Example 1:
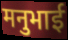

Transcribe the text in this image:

मनुभाई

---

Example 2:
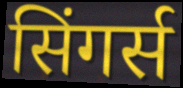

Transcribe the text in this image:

सिंगर्स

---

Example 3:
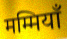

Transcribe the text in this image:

मम्मियाँ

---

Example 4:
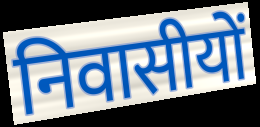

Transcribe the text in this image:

निवासीयों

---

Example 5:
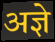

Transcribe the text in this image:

अज्ञे